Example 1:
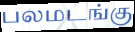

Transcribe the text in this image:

பலமடங்கு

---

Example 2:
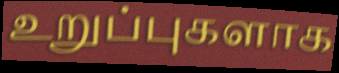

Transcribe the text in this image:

உறுப்புகளாக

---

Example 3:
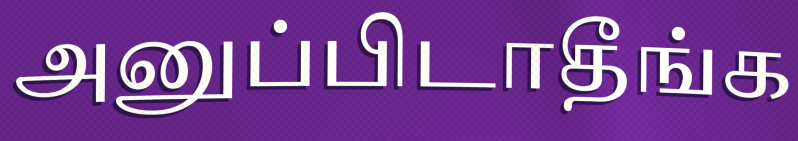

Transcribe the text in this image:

அனுப்பிடாதீங்க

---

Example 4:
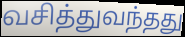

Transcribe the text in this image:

வசித்துவந்தது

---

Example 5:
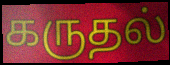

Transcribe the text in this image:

கருதல்